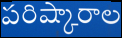
పరిష్కారాల